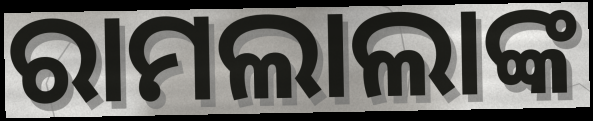
ରାମଲାଲାଙ୍କ